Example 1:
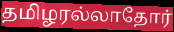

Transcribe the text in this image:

தமிழரல்லாதோர்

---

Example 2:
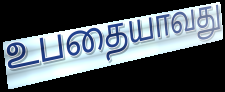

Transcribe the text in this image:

உபதையாவது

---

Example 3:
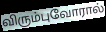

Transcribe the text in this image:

விரும்புவோரால்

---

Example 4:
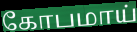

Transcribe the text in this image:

கோபமாய்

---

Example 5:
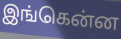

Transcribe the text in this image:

இங்கென்ன